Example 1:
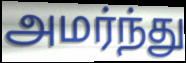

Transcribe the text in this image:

அமர்ந்து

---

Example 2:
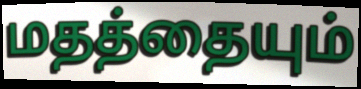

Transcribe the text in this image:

மதத்தையும்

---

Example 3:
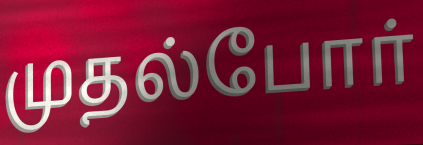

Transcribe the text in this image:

முதல்போர்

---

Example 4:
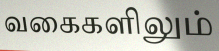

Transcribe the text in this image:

வகைகளிலும்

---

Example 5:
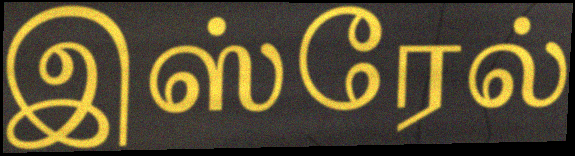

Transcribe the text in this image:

இஸ்ரேல்